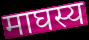
माघस्य